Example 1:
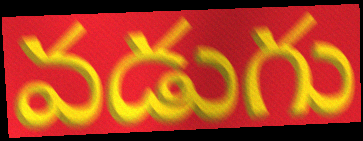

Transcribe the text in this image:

వడుగు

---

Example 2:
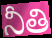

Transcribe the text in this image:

నీతి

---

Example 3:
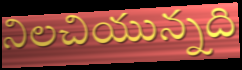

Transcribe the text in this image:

నిలచియున్నది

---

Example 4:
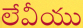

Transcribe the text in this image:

లేవీయు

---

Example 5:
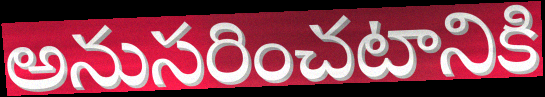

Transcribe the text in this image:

అనుసరించటానికి